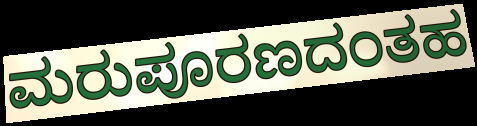
ಮರುಪೂರಣದಂತಹ